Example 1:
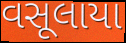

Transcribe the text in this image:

વસૂલાયા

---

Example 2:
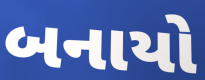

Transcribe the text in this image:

બનાયો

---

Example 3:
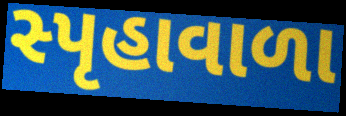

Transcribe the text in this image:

સ્પૃહાવાળા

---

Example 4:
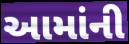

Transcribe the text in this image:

આમાંની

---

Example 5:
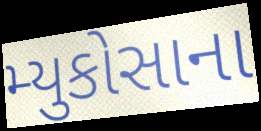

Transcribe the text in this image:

મ્યુકોસાના